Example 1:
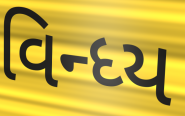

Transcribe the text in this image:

વિન્ધ્ય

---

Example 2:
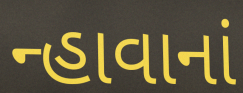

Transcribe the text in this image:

ન્હાવાનાં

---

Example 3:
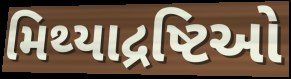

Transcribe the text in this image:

મિથ્યાદ્રષ્ટિઓ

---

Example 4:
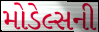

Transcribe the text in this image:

મોડેલ્સની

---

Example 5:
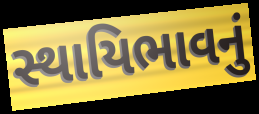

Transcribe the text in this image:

સ્થાયિભાવનું